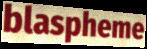
blaspheme